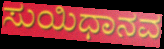
ಸುಯಿಧಾನವ